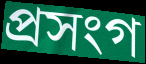
প্রসংগ